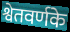
श्वेतवर्णके